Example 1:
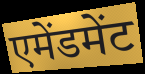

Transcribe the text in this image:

एमेंडमेंट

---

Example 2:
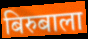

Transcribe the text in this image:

बिरुबाला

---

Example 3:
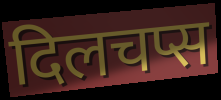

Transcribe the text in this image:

दिलचप्स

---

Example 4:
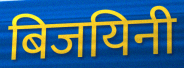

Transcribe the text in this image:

बिजयिनी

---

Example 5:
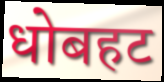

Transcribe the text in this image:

धोबहट